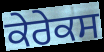
ਕੇਰੇਕਸ